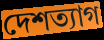
দেশত্যাগ